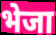
भेजा